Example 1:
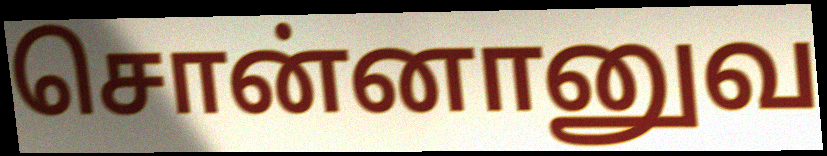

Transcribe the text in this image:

சொன்னானுவ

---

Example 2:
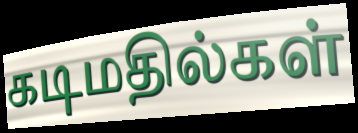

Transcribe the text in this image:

கடிமதில்கள்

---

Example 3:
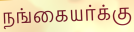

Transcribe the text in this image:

நங்கையர்க்கு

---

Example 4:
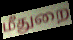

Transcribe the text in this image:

மீதுறை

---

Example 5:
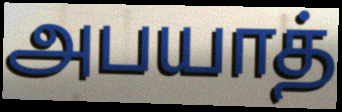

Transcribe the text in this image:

அபயாத்